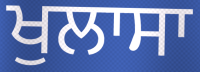
ਖੁਲਾਸਾ